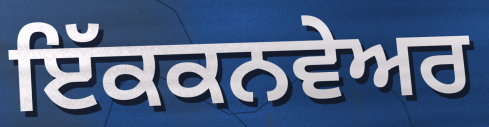
ਇੱਕਕਨਵੇਅਰ